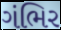
ગંભિર